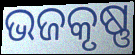
ଭଜକୃଷ୍ଣ